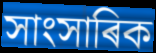
সাংসাৰিক